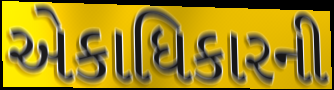
એકાધિકારની